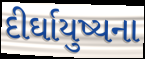
દીર્ઘાયુષ્યના